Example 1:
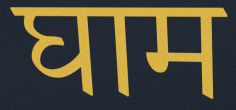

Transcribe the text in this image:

घाम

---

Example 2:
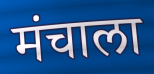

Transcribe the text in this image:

मंचाला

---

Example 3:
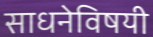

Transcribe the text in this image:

साधनेविषयी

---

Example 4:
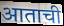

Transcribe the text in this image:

आताची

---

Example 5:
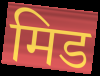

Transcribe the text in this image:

मिड